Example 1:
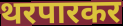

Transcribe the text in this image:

थरपारकर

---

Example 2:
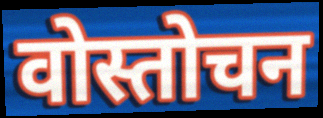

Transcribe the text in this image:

वोस्तोचन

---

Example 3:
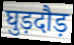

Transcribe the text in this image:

घुड़दौड़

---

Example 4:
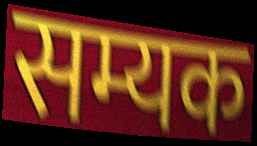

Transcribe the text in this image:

सम्‍यक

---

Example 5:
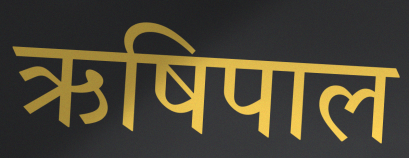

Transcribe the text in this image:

ऋषिपाल